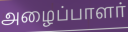
அழைப்பாளர்